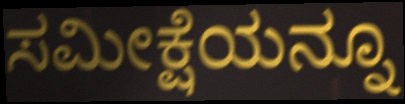
ಸಮೀಕ್ಷೆಯನ್ನೂ